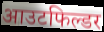
आउटफिल्डर